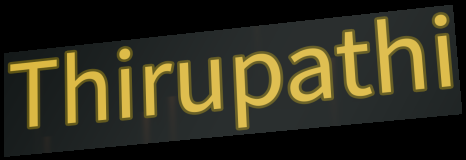
Thirupathi